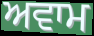
ਅਵਾਮ